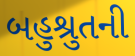
બહુશ્રુતની